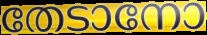
തേടാനോ